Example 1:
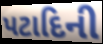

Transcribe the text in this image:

પટાદિની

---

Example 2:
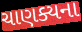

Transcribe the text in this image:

ચાણક્યના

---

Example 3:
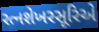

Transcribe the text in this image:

રત્નશેખરસૂરિએ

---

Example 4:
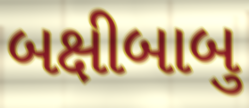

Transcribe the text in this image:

બક્ષીબાબુ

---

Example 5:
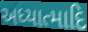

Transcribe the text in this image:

અધ્યાત્માદિ